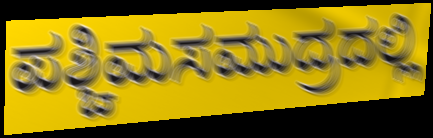
ಪಶ್ಚಿಮಸಮುದ್ರದಲ್ಲಿ